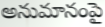
అనుమానంపై